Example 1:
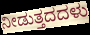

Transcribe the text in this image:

ನೀಡುತ್ತದದಳು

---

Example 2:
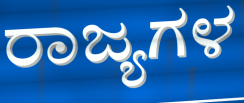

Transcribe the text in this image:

ರಾಜ್ಯಗಳ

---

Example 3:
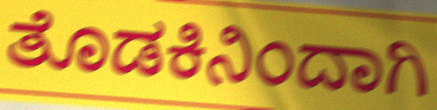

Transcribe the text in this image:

ತೊಡಕಿನಿಂದಾಗಿ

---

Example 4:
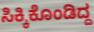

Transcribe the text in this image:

ಸಿಕ್ಕಿಕೊಂಡಿದ್ದ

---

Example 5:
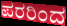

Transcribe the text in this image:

ಪರರಿಂದ